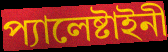
প্যালেষ্টাইনী